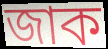
জাক